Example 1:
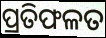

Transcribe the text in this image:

ପ୍ରତିଫଳତ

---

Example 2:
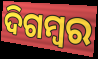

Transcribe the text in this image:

ଦିଗମ୍ୱର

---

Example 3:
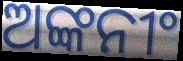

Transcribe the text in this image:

ଅଙ୍କନୀଂ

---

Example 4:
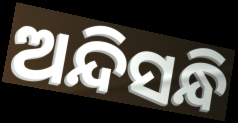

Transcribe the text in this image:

ଅନ୍ଦିସନ୍ଧି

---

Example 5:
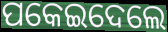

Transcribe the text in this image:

ପକେଇଦେଲେ